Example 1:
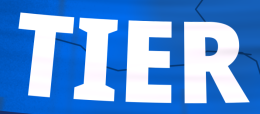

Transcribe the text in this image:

TIER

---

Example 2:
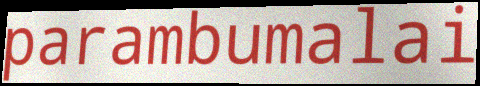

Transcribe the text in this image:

parambumalai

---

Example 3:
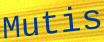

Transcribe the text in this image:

Mutis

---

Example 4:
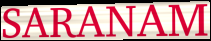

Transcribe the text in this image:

SARANAM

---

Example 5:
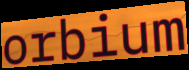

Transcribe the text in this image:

orbium